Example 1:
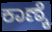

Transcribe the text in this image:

ಕಾಣ್ಕೆ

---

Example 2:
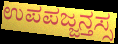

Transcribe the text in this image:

ಉಪಪಜ್ಜನ್ತಸ್ಸ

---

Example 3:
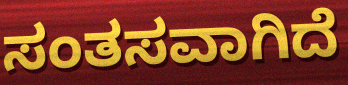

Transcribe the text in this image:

ಸಂತಸವಾಗಿದೆ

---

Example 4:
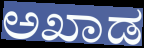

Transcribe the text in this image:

ಅಖಾಡ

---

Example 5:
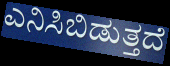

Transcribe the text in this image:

ಎನಿಸಿಬಿಡುತ್ತದೆ